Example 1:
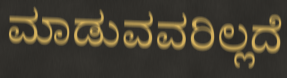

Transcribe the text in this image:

ಮಾಡುವವರಿಲ್ಲದೆ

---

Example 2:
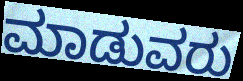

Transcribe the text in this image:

ಮಾಡುವರು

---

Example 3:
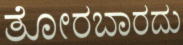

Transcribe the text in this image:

ತೋರಬಾರದು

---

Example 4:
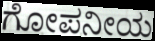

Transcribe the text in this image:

ಗೋಪನೀಯ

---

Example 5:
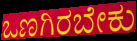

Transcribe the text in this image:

ಒಣಗಿರಬೇಕು